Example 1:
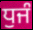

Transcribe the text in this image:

ਧੁਜੰ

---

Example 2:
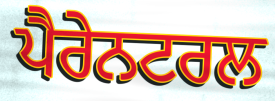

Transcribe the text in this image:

ਪੈਰੇਨਟਰਲ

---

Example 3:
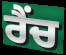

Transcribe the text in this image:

ਰੈਂਚ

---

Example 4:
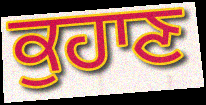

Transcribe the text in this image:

ਕੁਹਾਣ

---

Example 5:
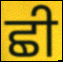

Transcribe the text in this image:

ਛੀ